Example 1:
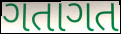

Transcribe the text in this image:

ગતાગત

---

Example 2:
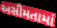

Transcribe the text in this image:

અસીમતામાં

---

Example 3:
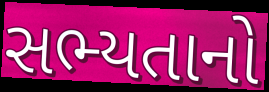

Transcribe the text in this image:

સભ્યતાનો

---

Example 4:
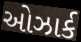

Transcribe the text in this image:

ઓઝાર્ક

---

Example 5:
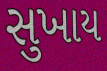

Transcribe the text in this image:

સુખાય